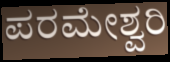
ಪರಮೇಶ್ವರಿ